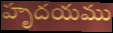
హృదయము